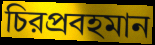
চিরপ্রবহমান